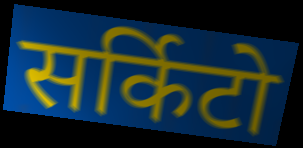
सर्किटो